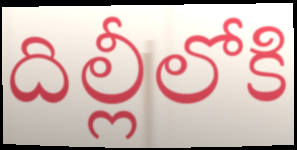
దిల్లీలోకి